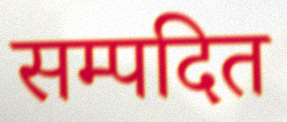
सम्पदित